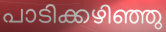
പാടിക്കഴിഞ്ഞു